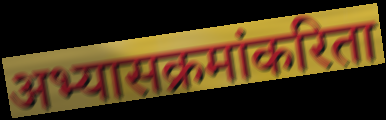
अभ्यासक्रमांकरिता